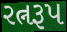
રત્નરૂપ